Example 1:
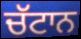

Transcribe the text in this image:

ਚੱਟਾਨ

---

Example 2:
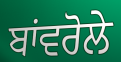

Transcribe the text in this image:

ਬਾਂਵਰੋਲੇ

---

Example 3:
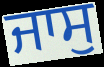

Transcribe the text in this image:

ਜਾਸੁ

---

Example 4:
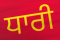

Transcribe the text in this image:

ਧਾਰੀ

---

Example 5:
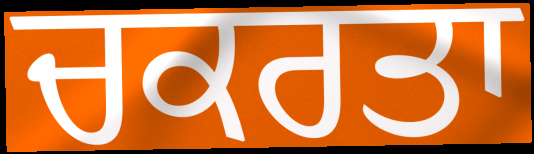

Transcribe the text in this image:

ਚਕਰਤਾ